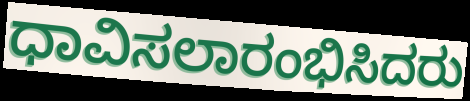
ಧಾವಿಸಲಾರಂಭಿಸಿದರು